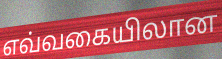
எவ்வகையிலான